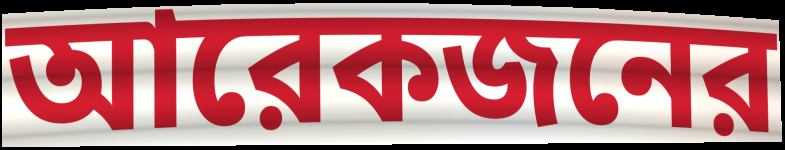
আরেকজনের